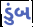
ડુંબ